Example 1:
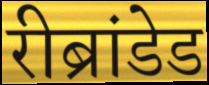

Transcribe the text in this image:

रीब्रांडेड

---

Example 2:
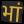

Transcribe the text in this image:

भां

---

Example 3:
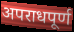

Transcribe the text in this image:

अपराधपूर्ण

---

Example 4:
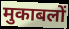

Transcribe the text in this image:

मुकाबलों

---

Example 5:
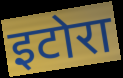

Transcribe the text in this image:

इटोरा